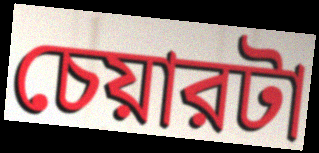
চেয়ারটা